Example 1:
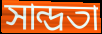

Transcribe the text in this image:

সান্দ্ৰতা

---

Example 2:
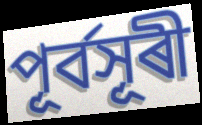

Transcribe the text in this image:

পূৰ্বসূৰী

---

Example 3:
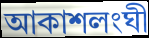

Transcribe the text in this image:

আকাশলংঘী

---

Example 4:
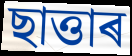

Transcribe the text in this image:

ছাত্তাৰ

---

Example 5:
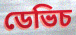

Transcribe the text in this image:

ডেভিচ